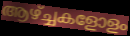
ആഴ്ച്ചകളോളം